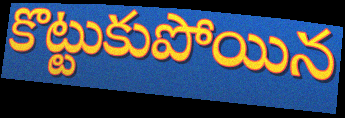
కొట్టుకుపోయిన